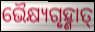
ଭୈକ୍ଷ୍ୟଗୃହ୍ଣାତ୍